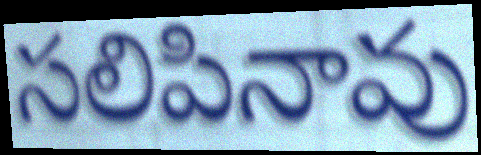
సలిపినావు